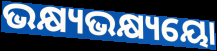
ଭକ୍ଷ୍ୟଭକ୍ଷ୍ୟୟୋ